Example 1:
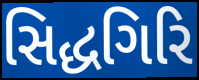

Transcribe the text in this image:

સિદ્ધગિરિ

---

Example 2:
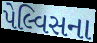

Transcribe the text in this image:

પેલ્વિસના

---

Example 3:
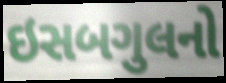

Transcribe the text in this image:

ઇસબગુલનો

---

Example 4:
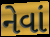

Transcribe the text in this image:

નેવાં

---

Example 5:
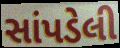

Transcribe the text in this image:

સાંપડેલી